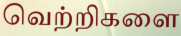
வெற்றிகளை